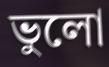
ভুলো